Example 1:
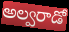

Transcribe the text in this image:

అల్వరాడో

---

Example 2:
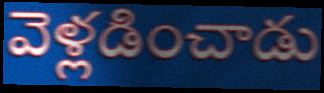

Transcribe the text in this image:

వెళ్లడించాడు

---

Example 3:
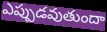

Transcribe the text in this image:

ఎప్పుడవుతుందా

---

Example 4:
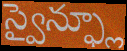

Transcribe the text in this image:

స్వైన్ఫ్లూ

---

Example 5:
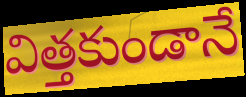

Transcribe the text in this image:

విత్తకుండానే